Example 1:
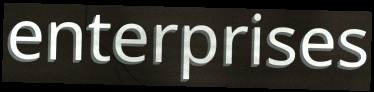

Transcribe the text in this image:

enterprises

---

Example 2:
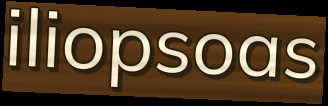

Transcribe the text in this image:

iliopsoas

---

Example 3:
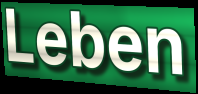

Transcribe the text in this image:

Leben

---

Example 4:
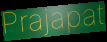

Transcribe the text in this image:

Prajapat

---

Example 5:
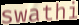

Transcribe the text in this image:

swathi